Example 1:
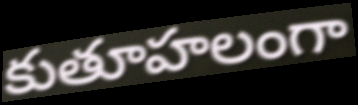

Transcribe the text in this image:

కుతూహలంగా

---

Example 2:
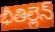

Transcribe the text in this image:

భీతిల్లెన్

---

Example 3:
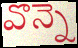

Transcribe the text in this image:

వొన్నె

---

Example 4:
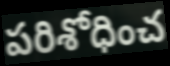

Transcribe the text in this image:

పరిశోధించ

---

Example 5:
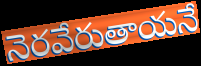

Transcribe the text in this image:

నెరవేరుతాయనే